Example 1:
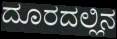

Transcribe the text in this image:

ದೂರದಲ್ಲಿನ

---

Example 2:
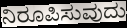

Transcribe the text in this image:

ನಿರೂಪಿಸುವುದು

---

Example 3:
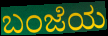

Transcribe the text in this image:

ಬಂಜೆಯ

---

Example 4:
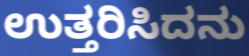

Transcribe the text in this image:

ಉತ್ತರಿಸಿದನು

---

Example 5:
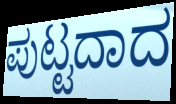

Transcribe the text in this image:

ಪುಟ್ಟದಾದ